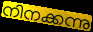
നിനക്കന്നു